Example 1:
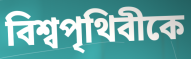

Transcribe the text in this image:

বিশ্বপৃথিবীকে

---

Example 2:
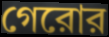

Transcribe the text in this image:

গেরোর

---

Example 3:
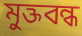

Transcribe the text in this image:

মুক্তবন্ধ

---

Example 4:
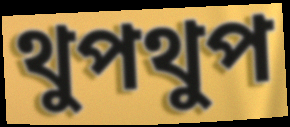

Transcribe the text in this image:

থুপথুপ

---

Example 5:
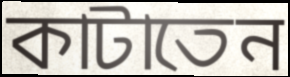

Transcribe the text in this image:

কাটাতেন